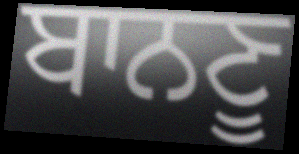
ਬਾਨਣੂ